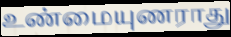
உண்மையுணராது